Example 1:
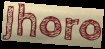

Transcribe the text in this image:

Jhoro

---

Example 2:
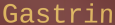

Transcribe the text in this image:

Gastrin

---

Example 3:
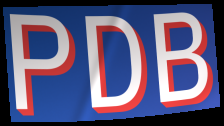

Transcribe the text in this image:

PDB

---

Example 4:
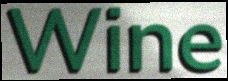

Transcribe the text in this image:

Wine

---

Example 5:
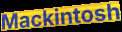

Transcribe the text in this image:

Mackintosh